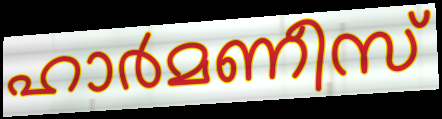
ഹാർമണീസ്